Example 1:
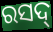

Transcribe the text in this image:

ରସଦ୍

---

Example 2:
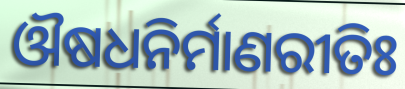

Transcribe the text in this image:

ଔଷଧନିର୍ମାଣରୀତିଃ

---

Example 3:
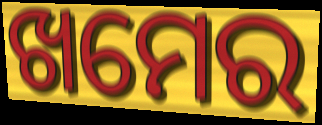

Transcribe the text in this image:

ଖମେର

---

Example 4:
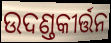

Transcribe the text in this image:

ଉଦଣ୍ଡକୀର୍ତ୍ତନ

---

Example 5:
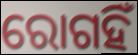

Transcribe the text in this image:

ରୋଗହିଁ